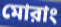
মোরাং